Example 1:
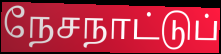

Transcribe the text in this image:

நேசநாட்டுப்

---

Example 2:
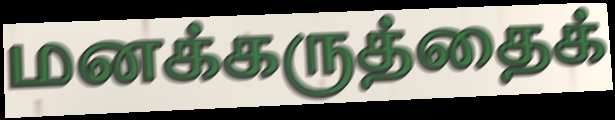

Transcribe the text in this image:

மனக்கருத்தைக்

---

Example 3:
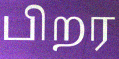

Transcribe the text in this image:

பிறர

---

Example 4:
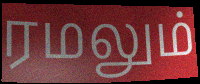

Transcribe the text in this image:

ரமலும்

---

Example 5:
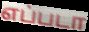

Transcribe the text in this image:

எப்படா